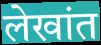
लेखांत